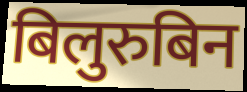
बिलुरुबिन